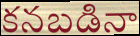
కనబడినా